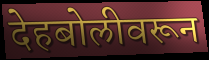
देहबोलीवरून